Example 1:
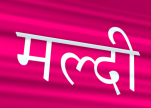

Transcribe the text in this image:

मल्दी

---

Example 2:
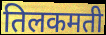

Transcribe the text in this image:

तिलकमती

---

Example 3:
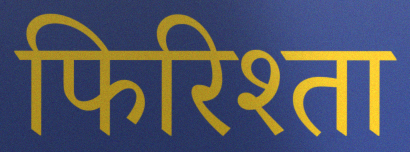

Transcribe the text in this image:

फिरिश्ता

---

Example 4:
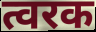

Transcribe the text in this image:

त्वरक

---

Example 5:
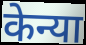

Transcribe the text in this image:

केन्या